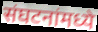
संघटनांमध्ये